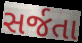
સર્જતા